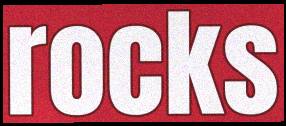
rocks